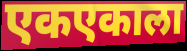
एकएकाला